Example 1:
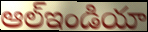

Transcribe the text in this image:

ఆల్ఇండియా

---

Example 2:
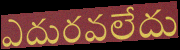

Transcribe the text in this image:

ఎదురవలేదు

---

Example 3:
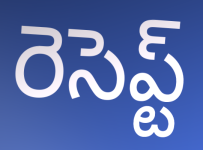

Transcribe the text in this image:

రెసెప్ట్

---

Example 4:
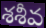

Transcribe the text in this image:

శశీవ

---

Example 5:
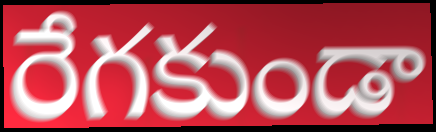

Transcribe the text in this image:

రేగకుండా